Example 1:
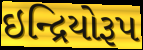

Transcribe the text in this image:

ઇન્દ્રિયોરૂપ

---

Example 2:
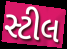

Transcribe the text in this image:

સ્ટીલ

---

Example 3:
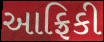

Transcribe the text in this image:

આફ્રિકી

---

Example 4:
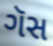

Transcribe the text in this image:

ગૅસ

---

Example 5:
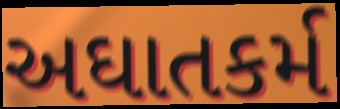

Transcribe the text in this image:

અઘાતકર્મ